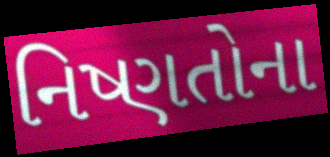
નિષ્ણતોના